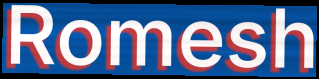
Romesh